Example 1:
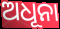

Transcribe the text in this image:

ଅଧୂନା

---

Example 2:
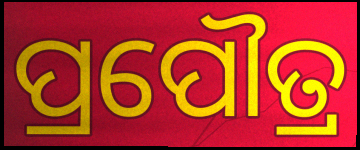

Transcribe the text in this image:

ପ୍ରପୌତ୍ର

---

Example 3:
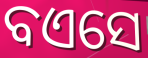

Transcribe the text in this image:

ବଏସେ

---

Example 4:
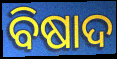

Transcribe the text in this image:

ବିଷାଦ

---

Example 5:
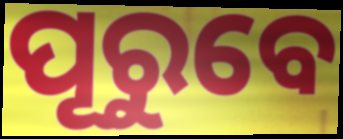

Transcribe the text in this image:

ପୂରୁବେ